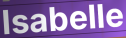
Isabelle